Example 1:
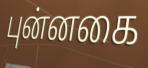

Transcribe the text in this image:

புன்னகை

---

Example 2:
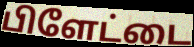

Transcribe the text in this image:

பிளேட்டை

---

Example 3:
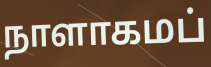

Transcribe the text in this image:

நாளாகமப்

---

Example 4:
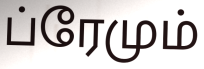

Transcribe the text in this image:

ப்ரேமும்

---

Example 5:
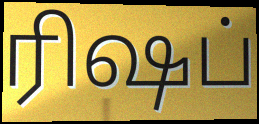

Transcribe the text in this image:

ரிஷப்